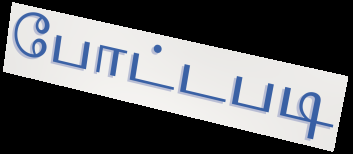
போட்டபடி